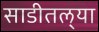
साडीतल्या